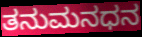
ತನುಮನಧನ